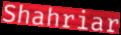
Shahriar